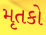
મૃતકો